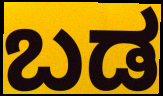
ಬಡ